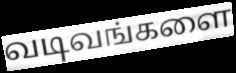
வடிவங்களை